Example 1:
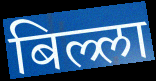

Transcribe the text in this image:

बिल्ला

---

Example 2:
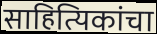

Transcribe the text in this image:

साहित्यिकांचा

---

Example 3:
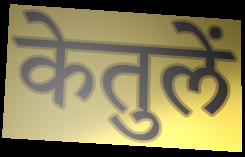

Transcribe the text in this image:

केतुलें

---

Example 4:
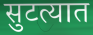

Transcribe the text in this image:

सुटत्यात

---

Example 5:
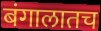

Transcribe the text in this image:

बंगालातच